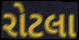
રોટલા